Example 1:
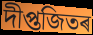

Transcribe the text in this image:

দীপ্তজিতৰ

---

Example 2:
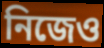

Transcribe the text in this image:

নিজেও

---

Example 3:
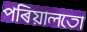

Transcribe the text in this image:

পৰিয়ালতো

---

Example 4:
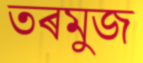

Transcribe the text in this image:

তৰমুজ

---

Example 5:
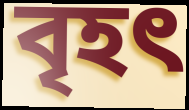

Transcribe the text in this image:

বৃহৎ